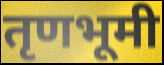
तृणभूमी